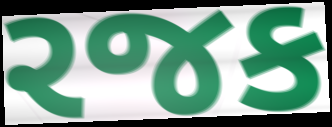
રજક